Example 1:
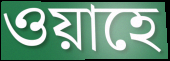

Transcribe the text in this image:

ওয়াহে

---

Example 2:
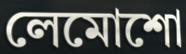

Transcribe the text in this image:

লেমোশো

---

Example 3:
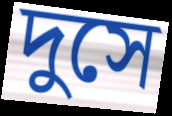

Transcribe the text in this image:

দুসে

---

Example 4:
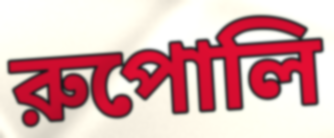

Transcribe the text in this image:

রুপোলি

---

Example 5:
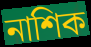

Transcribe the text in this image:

নাশিক